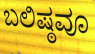
ಬಲಿಷ್ಠವೂ